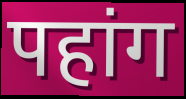
पहांग